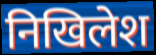
निखिलेश